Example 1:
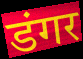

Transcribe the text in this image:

डंगर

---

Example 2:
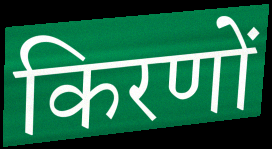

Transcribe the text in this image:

किरणों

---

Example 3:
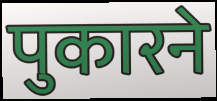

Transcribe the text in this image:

पुकारने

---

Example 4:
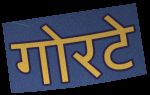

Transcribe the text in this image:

गोरटे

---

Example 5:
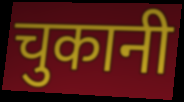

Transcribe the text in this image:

चुकानी